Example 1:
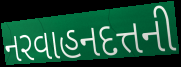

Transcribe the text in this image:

નરવાહનદત્તની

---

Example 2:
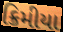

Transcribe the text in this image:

ક્રિમીયા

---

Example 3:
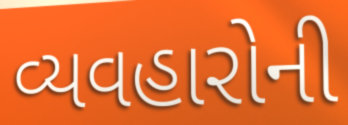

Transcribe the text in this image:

વ્યવહારોની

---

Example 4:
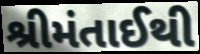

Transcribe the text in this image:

શ્રીમંતાઈથી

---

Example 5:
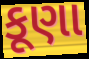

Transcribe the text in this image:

કૂણા